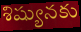
శిష్యునకు